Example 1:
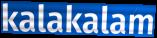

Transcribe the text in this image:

kalakalam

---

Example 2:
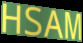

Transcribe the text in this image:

HSAM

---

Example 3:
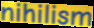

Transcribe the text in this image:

nihilism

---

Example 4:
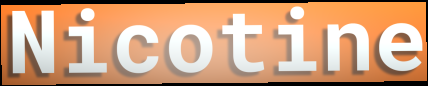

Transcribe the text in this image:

Nicotine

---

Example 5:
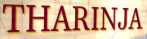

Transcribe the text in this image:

THARINJA